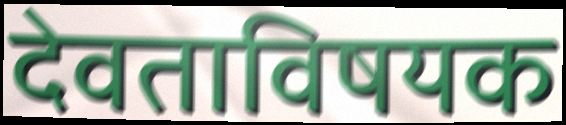
देवताविषयक